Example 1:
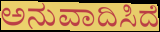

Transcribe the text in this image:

ಅನುವಾದಿಸಿದೆ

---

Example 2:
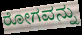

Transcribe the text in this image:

ರೋಗವನ್ನು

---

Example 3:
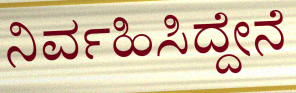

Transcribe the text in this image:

ನಿರ್ವಹಿಸಿದ್ದೇನೆ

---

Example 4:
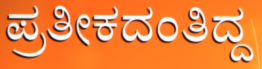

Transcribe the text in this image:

ಪ್ರತೀಕದಂತಿದ್ದ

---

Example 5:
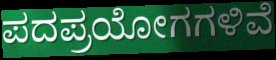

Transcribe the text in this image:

ಪದಪ್ರಯೋಗಗಳಿವೆ